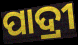
ପାଦ୍ରୀ